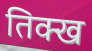
तिक्ख